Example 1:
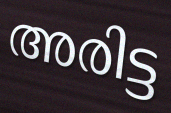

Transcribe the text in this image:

അരിട്ട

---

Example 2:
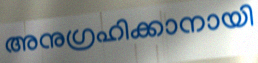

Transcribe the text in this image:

അനുഗ്രഹിക്കാനായി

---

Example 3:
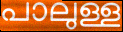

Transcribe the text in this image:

പാലുള്ള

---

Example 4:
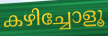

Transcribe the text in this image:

കഴിച്ചോളൂ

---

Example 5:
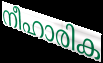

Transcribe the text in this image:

നീഹാരിക